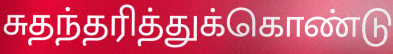
சுதந்தரித்துக்கொண்டு